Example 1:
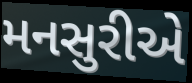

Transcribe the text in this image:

મનસુરીએ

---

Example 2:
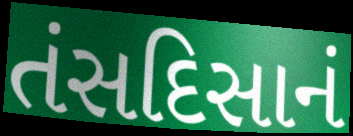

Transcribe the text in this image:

તંસદિસાનં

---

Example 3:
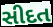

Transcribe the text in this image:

સીદત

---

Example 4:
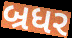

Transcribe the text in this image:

બ્રધર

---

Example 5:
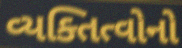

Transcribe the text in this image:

વ્યક્તિત્વોનો